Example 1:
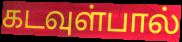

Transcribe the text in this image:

கடவுள்பால்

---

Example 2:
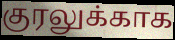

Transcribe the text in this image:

குரலுக்காக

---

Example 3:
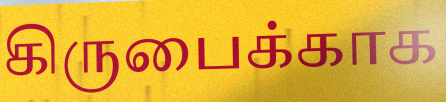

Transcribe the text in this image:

கிருபைக்காக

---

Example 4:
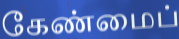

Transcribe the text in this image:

கேண்மைப்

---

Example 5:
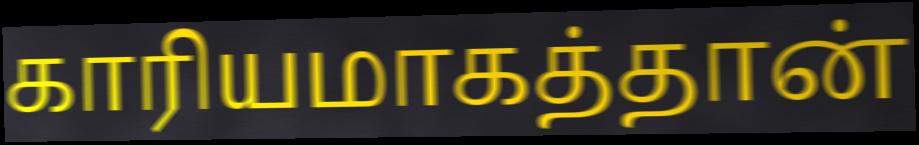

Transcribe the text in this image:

காரியமாகத்தான்